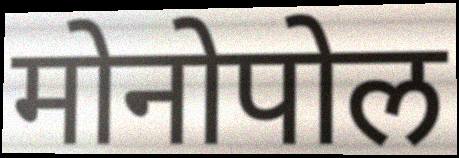
मोनोपोल